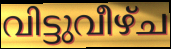
വിട്ടുവീഴ്ച